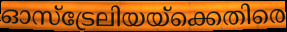
ഓസ്ട്രേലിയയ്ക്കെതിരെ